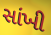
સાંખી